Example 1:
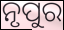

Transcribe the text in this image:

ନୃପୁର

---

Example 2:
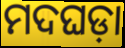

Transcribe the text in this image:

ମଦଘଡ଼ା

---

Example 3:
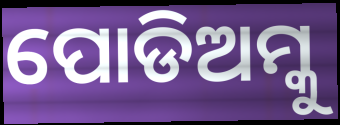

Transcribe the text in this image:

ପୋଡିଅମ୍କୁ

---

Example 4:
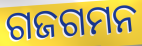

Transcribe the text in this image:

ଗଜଗମନ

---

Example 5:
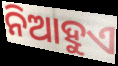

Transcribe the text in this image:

ନିଆହୁଏ